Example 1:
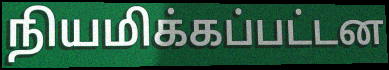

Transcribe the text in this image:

நியமிக்கப்பட்டன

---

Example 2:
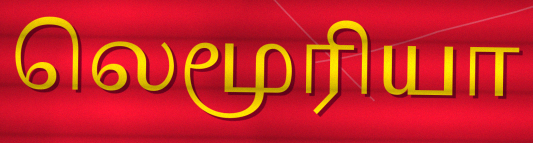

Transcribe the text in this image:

லெமூரியா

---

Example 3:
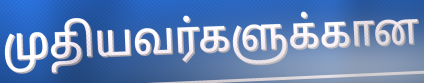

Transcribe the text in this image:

முதியவர்களுக்கான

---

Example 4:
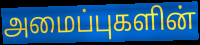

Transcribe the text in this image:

அமைப்புகளின்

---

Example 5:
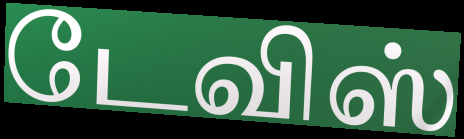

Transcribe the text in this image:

டேவிஸ்